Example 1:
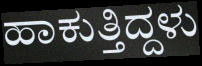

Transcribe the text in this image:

ಹಾಕುತ್ತಿದ್ದಳು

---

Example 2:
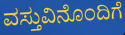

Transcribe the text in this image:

ವಸ್ತುವಿನೊಂದಿಗೆ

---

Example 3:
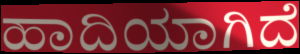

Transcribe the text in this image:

ಹಾದಿಯಾಗಿದೆ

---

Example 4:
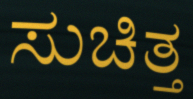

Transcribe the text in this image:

ಸುಚಿತ್ತ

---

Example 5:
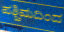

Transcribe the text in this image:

ಪಶ್ಚಿಮದಿಂದ